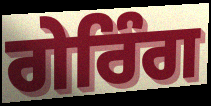
ਗੇਰਿੰਗ